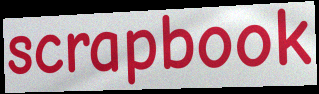
scrapbook